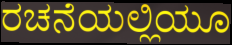
ರಚನೆಯಲ್ಲಿಯೂ